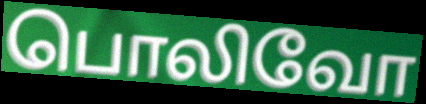
பொலிவோ